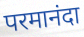
परमानंदा